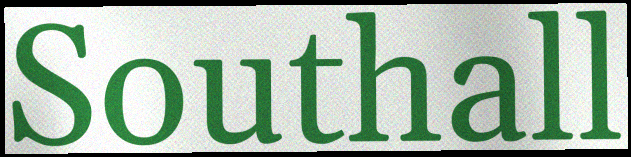
Southall